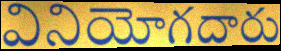
వినియోగదారు